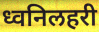
ध्वनिलहरी